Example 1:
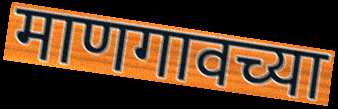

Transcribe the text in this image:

माणगावच्या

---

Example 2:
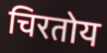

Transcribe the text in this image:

चिरतोय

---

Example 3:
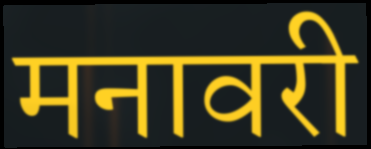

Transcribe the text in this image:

मनावरी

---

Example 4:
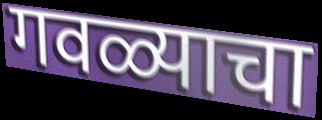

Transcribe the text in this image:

गवळ्याचा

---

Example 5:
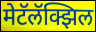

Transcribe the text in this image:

मेटॅलॅक्झिल